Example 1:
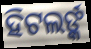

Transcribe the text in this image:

ହିଟଲର୍ଙ୍କ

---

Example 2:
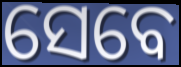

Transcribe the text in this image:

ସେବେ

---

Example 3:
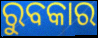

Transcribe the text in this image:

ରୁବକାର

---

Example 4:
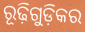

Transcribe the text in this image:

ରୂଢ଼ିଗୁଡ଼ିକର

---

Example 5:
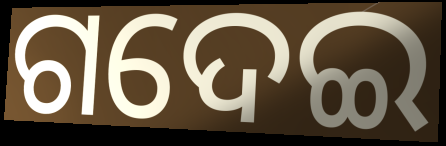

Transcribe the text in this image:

ଗଦେଇ